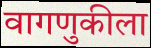
वागणुकीला